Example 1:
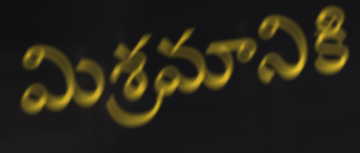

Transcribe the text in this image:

మిశ్రమానికి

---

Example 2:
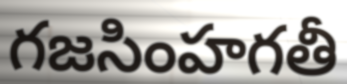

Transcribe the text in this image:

గజసింహగతీ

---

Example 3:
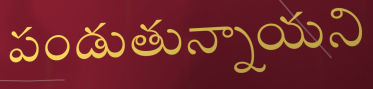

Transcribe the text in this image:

పండుతున్నాయని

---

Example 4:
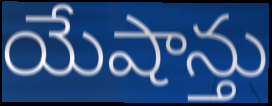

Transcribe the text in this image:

యేషాన్తు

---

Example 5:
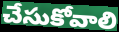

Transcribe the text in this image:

చేసుకోవాలి